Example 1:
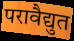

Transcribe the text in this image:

परावैद्युत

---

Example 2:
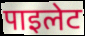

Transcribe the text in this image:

पाइलेट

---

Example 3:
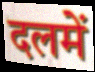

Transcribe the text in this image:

दलमें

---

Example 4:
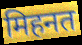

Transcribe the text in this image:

मिहनत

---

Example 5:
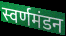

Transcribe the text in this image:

स्वर्णमंडन